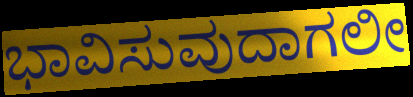
ಭಾವಿಸುವುದಾಗಲೀ